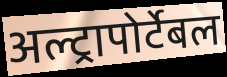
अल्ट्रापोर्टेबल